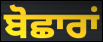
ਬੋਛਾਰਾਂ